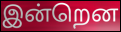
இன்றென